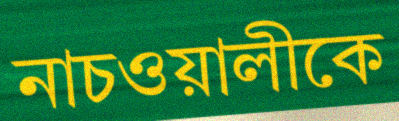
নাচওয়ালীকে